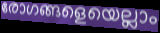
രോഗങ്ങളെയെല്ലാം